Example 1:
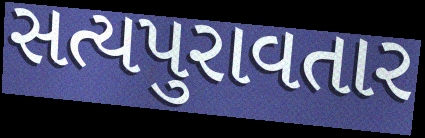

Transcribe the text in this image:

સત્યપુરાવતાર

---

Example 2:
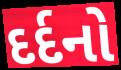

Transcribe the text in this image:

દર્દનો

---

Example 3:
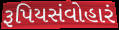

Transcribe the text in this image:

રૂપિયસંવોહારં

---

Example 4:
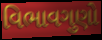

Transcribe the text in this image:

વિભાવગુણો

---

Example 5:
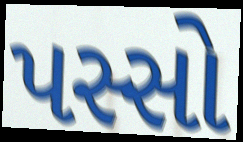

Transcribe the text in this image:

પસ્સો